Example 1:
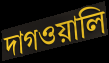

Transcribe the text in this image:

দাগওয়ালি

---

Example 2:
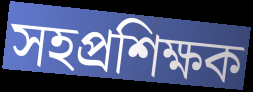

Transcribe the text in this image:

সহপ্রশিক্ষক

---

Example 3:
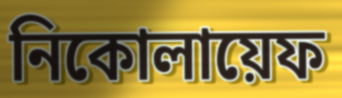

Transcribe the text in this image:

নিকোলায়েফ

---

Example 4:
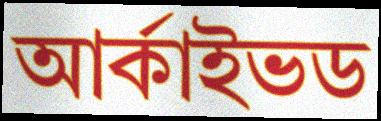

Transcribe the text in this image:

আর্কাইভড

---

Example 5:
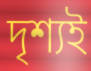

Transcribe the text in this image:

দৃশ্যই